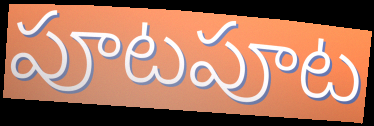
పూటపూట